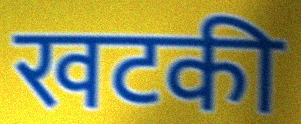
खटकी